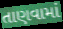
તાણવામાં